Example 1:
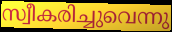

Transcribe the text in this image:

സ്വീകരിച്ചുവെന്നു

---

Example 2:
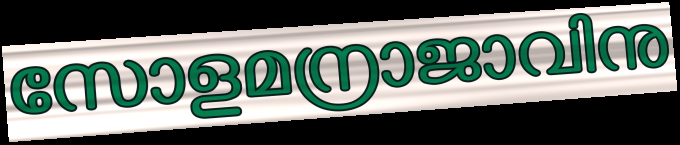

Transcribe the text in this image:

സോളമന്രാജാവിനു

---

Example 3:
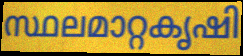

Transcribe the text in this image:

സ്ഥലമാറ്റകൃഷി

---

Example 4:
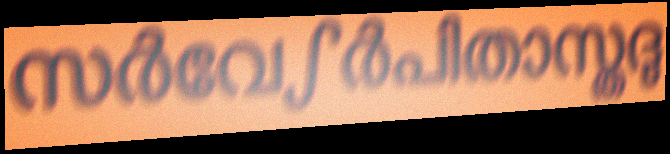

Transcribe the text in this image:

സർവേഽർപിതാസ്തദു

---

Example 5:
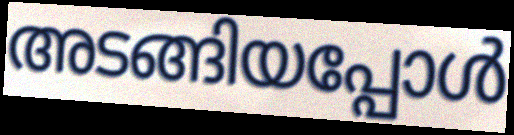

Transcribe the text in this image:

അടങ്ങിയപ്പോൾ